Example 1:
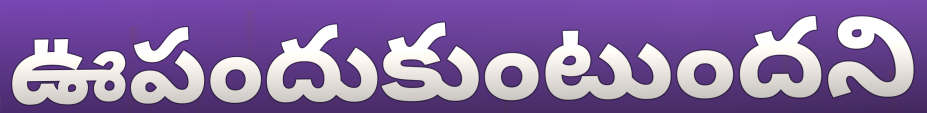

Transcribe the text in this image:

ఊపందుకుంటుందని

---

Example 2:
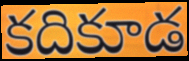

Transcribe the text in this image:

కదికూడ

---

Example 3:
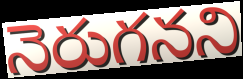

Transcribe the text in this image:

నెరుగనని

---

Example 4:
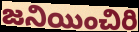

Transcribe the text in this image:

జనియించిరి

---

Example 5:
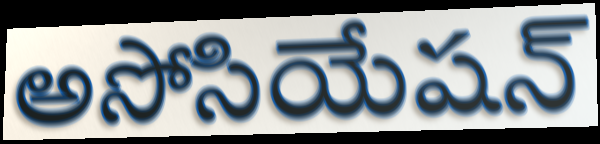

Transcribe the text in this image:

అసోసియేషన్